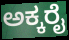
ಅಕ್ಕರೈ